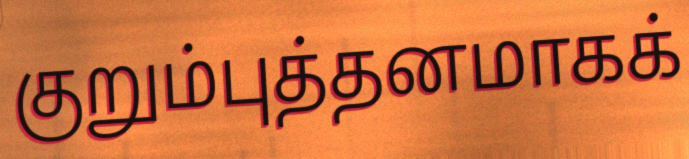
குறும்புத்தனமாகக்